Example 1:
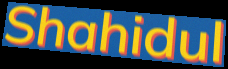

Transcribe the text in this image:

Shahidul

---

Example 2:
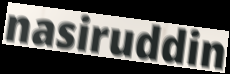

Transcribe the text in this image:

nasiruddin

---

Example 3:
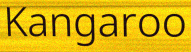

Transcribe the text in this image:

Kangaroo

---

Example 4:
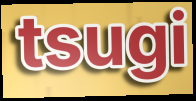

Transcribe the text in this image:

tsugi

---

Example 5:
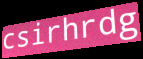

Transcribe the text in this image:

csirhrdg